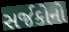
સર્જકોનો